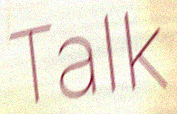
Talk